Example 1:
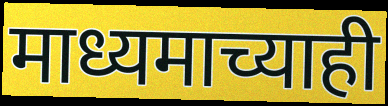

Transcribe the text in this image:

माध्यमाच्याही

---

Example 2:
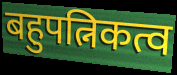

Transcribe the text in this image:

बहुपत्निकत्व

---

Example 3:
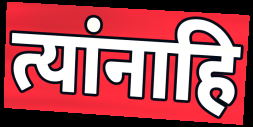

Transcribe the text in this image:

त्यांनाहि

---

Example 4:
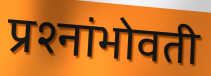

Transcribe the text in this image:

प्रश्नांभोवती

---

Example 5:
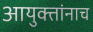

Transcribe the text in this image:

आयुक्तांनाच